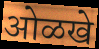
ओळखे